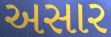
અસાર